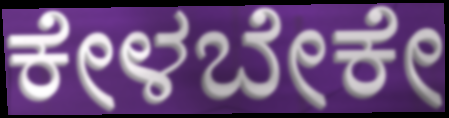
ಕೇಳಬೇಕೇ